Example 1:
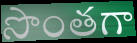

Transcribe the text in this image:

సొంతగా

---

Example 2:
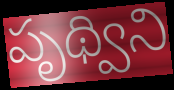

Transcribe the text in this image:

పృథ్విని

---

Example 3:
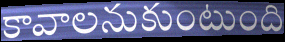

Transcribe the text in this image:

కావాలనుకుంటుంది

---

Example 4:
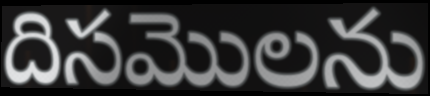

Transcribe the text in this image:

దిసమొలను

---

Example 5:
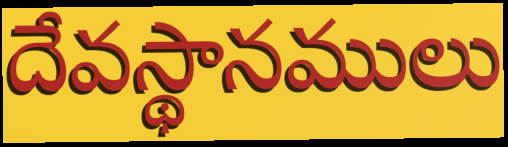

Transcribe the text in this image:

దేవస్థానములు